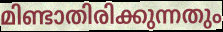
മിണ്ടാതിരിക്കുന്നതും